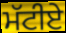
ਮੱਟੀਏ